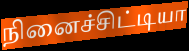
நினைச்சிட்டியா